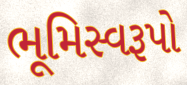
ભૂમિસ્વરૂપો